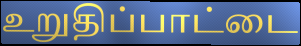
உறுதிப்பாட்டை